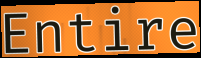
Entire